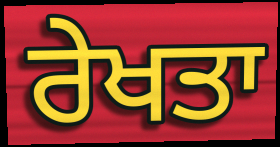
ਰੇਖਤਾ